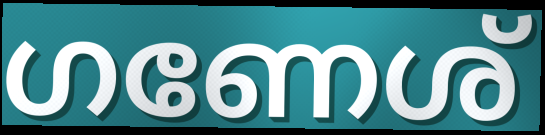
ഗണേശ്